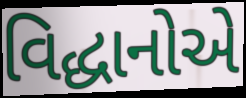
વિદ્ધાનોએ